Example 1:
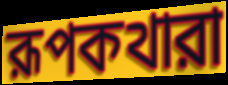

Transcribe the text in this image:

রূপকথারা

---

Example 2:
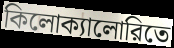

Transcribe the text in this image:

কিলোক্যালোরিতে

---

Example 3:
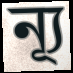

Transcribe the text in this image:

ন্যূ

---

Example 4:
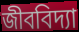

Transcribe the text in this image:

জীববিদ্যা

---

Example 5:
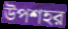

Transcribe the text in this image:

উপশহর